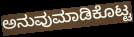
ಅನುವುಮಾಡಿಕೊಟ್ಟ